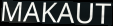
MAKAUT